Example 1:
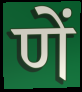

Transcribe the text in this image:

णें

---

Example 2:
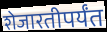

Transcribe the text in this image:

शेजारतीपर्यंत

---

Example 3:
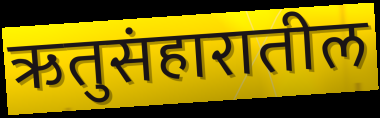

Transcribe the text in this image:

ऋतुसंहारातील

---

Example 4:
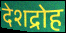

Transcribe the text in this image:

देशद्रोह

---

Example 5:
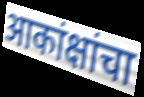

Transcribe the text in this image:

आकांक्षांचा